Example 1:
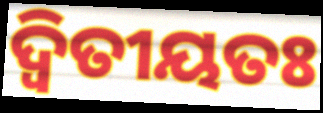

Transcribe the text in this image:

ଦ୍ବିତୀୟତଃ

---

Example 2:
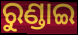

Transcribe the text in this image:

ରୁଣ୍ଡାଇ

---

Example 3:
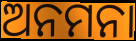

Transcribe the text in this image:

ଅନମନା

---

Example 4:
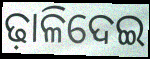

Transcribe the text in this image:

ଢ଼ାଳିଦେଇ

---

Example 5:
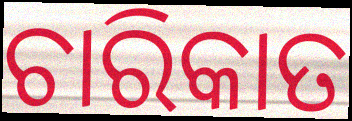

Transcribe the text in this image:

ଚାରିକାତ